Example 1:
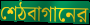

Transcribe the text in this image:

শেঠবাগানের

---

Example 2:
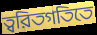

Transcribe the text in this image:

ত্বরিতগতিতে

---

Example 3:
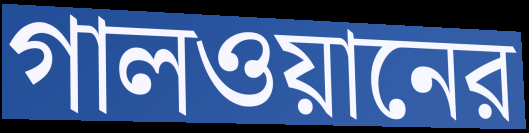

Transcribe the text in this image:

গালওয়ানের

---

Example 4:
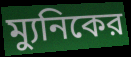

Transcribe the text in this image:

ম্যুনিকের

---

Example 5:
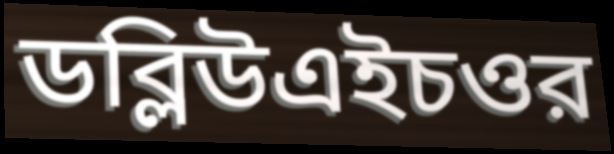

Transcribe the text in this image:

ডব্লিউএইচওর